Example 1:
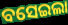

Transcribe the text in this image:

ବସେଇଲା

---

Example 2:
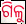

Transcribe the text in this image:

ଗିଳୁ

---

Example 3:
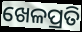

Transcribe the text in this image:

ଖେଳପ୍ରତି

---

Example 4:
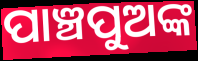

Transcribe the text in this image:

ପାଞ୍ଚପୁଅଙ୍କ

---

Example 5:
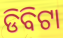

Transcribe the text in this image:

ଡିବିଟା